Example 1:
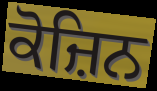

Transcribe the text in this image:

ਕੋਜ਼ਿਨ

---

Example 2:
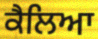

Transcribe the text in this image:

ਕੈਲਿਆ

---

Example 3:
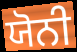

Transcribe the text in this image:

ਯੋਨੀ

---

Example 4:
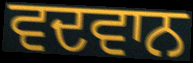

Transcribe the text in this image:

ਵਦਵਾਨ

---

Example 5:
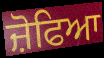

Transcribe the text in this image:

ਜ਼ੋਫਿਆ